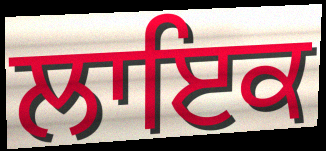
ਲਾਇਕ